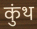
कुंथ